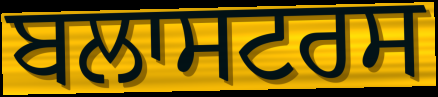
ਬਲਾਸਟਰਸ